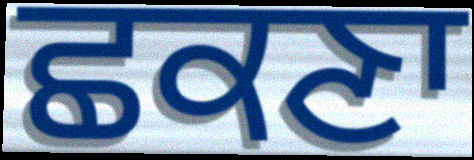
ਛਕਣਾ